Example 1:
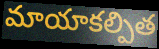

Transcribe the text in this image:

మాయాకల్పిత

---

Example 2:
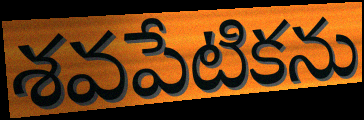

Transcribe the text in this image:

శవపేటికను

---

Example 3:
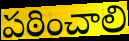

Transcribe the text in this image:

పఠించాలి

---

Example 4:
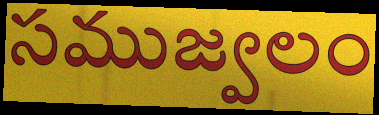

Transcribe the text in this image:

సముజ్వలం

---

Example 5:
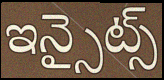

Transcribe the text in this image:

ఇన్సైట్స్